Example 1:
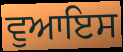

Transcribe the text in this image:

ਵੁਆਇਸ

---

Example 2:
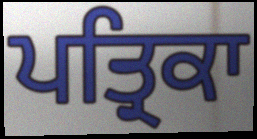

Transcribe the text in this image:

ਪਤ੍ਰਿਕਾ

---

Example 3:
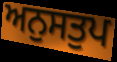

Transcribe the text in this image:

ਅਨੁਸਤੁਪ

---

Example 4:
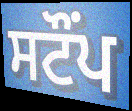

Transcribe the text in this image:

ਸਟੌਂਪ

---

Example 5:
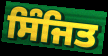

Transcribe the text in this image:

ਸਿੰਜਿਤ